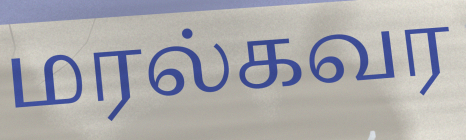
மரல்கவர